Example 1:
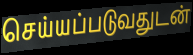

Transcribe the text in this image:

செய்யப்படுவதுடன்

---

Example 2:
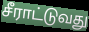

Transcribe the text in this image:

சீராட்டுவது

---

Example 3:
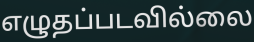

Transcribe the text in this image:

எழுதப்படவில்லை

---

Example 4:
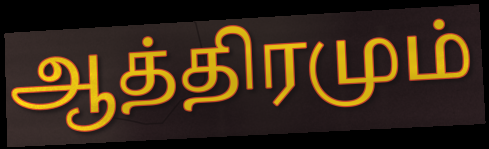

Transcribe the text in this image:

ஆத்திரமும்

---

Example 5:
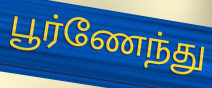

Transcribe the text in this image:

பூர்ணேந்து